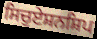
ਸਿਚੁਏਸ਼ਨਸ਼ਿਪ